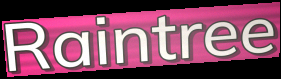
Raintree